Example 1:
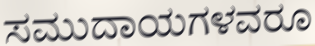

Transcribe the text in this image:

ಸಮುದಾಯಗಳವರೂ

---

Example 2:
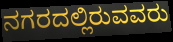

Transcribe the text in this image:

ನಗರದಲ್ಲಿರುವವರು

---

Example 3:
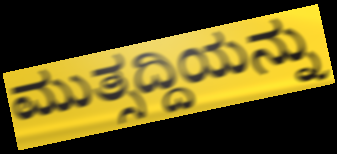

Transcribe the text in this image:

ಮುತ್ಸದ್ದಿಯನ್ನು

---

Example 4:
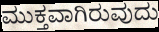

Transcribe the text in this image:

ಮುಕ್ತವಾಗಿರುವುದು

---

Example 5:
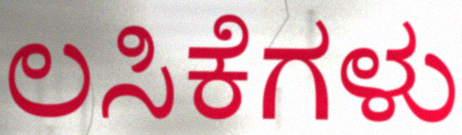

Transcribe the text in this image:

ಲಸಿಕೆಗಳು